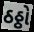
ઠઠ્ઠો